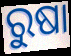
ରୁଷା